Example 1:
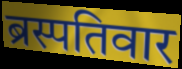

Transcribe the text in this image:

ब्रस्पतिवार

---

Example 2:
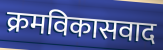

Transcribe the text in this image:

क्रमविकासवाद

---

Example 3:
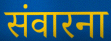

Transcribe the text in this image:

संवारना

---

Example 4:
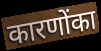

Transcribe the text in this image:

कारणोंका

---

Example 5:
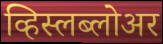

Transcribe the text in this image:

व्हिस्लब्लोअर